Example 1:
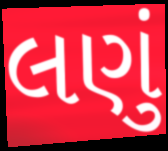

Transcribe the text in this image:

લણું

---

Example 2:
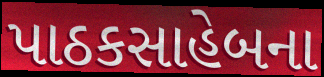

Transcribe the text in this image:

પાઠકસાહેબના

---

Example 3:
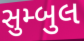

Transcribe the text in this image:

સુમ્બુલ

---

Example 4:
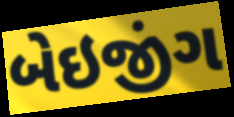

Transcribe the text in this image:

બેઇજીંગ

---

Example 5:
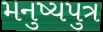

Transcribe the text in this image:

મનુષ્યપુત્ર